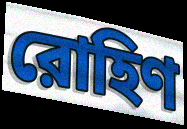
রোহিণ